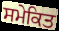
ਸਮੇਕਿਤ